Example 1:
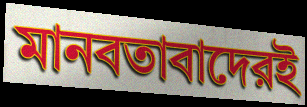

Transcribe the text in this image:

মানবতাবাদেরই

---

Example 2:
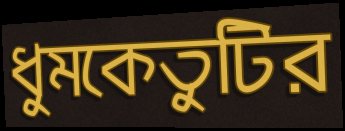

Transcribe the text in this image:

ধুমকেতুটির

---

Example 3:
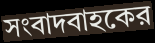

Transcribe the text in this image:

সংবাদবাহকের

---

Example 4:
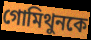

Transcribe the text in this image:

গোমিথুনকে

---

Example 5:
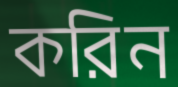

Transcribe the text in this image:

করিন